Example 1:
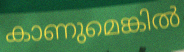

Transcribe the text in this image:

കാണുമെങ്കിൽ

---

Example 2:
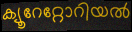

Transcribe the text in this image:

ക്യൂറേറ്റോറിയൽ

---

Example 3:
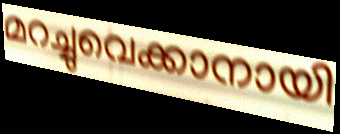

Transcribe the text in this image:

മറച്ചുവെക്കാനായി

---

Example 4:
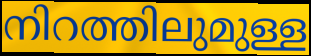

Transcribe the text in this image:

നിറത്തിലുമുള്ള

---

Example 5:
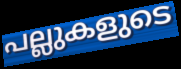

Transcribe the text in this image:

പല്ലുകളുടെ